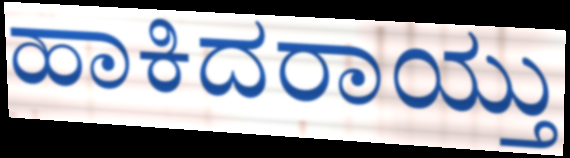
ಹಾಕಿದರಾಯ್ತು